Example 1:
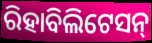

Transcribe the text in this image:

ରିହାବିଲିଟେସନ୍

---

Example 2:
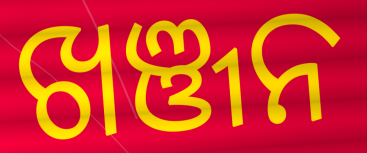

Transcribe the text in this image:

ଖଞ୍ଜନ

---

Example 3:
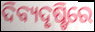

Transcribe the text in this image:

ଦିବ୍ୟଦୃଷ୍ଟିରେ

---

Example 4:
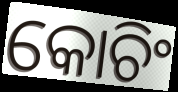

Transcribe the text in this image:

କୋଚିଂ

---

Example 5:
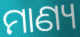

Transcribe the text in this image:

ମାଣ୍ୟ